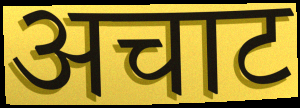
अचाट